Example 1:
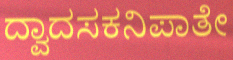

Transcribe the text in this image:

ದ್ವಾದಸಕನಿಪಾತೇ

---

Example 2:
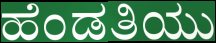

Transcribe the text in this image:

ಹೆಂಡತಿಯು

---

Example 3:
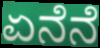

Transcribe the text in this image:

ಏನೆನೆ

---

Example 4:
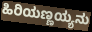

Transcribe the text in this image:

ಹಿರಿಯಣ್ಣಯ್ಯನು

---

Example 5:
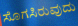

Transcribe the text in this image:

ಸೊಗಸಿರುವುದು